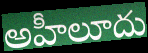
అహీలూదు